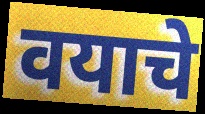
वयाचे